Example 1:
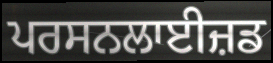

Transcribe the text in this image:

ਪਰਸਨਲਾਈਜ਼ਡ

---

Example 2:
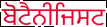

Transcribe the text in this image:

ਬੋਟੈਨੀਜਿਸਟ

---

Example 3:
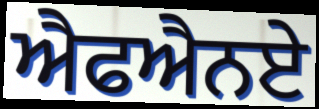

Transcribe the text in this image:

ਐਫਐਨਏ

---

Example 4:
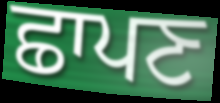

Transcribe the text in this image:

ਛਾਪਣ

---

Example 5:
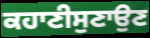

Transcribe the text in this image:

ਕਹਾਣੀਸੁਣਾਉਣ